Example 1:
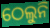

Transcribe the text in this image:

ଠେଲୁନି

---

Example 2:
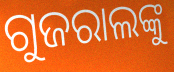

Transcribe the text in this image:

ଗୁଜରାଲଙ୍କୁ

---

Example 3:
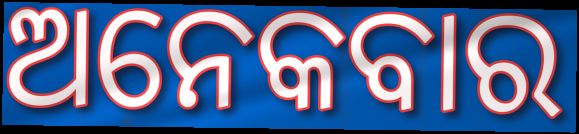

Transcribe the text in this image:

ଅନେକବାର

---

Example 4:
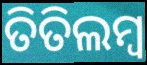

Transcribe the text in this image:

ତିତିଲମ୍ଵ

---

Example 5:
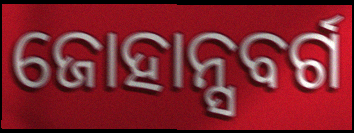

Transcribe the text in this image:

ଜୋହାନ୍ସବର୍ଗ